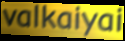
valkaiyai